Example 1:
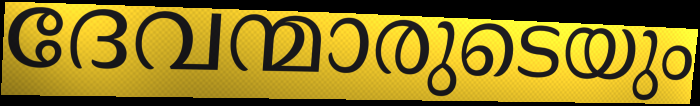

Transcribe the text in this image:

ദേവന്മാരുടെയും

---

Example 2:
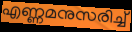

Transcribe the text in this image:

എണ്ണമനുസരിച്ച്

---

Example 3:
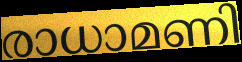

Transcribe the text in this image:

രാധാമണി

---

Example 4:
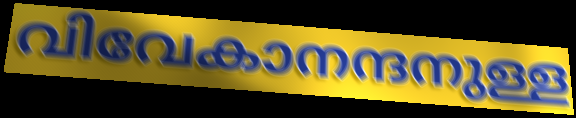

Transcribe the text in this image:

വിവേകാനന്ദനുള്ള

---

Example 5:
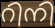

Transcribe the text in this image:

റിനി